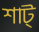
শাট্